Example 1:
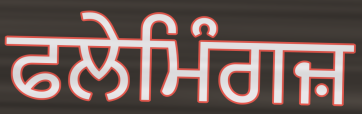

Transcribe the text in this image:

ਫਲੇਮਿੰਗਜ਼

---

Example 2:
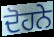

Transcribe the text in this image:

ਦੋਹਨੇ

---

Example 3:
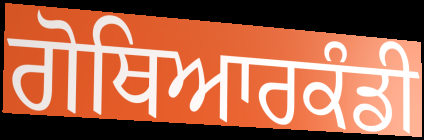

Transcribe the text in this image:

ਗੋਥਿਆਰਕੰਡੀ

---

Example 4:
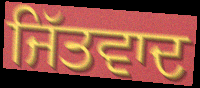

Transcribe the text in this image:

ਜਿੱਤਵਾਦ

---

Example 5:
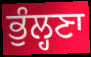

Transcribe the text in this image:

ਭੁੰਲ੍ਹਣਾ